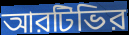
আরটিভির